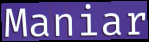
Maniar